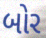
બોર